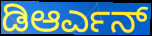
ಡಿಆರ್ಎನ್